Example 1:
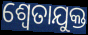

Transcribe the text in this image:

ଶ୍ଵେତାଯୁକ୍ତ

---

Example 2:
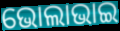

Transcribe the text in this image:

ଭୋଲାଭାଇ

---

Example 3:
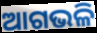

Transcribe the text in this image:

ଆଗଭଳି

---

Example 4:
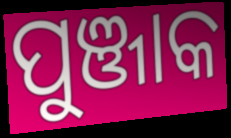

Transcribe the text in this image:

ପୁଞ୍ଜାକ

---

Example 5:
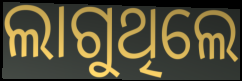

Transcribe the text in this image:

ଲାଗୁଥିଲେ